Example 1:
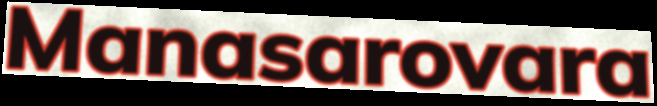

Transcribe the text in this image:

Manasarovara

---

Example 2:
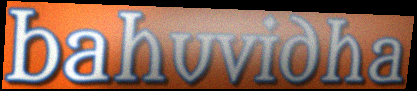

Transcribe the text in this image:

bahuvidha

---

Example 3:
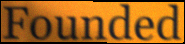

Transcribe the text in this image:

Founded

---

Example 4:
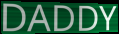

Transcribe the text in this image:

DADDY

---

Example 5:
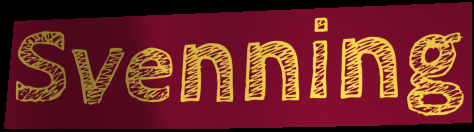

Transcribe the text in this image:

Svenning